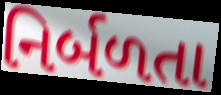
નિર્બળતા